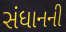
સંધાનની